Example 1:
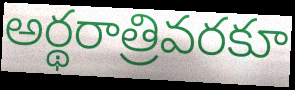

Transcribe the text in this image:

అర్థరాత్రివరకూ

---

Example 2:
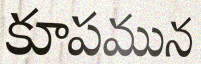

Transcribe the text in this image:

కూపమున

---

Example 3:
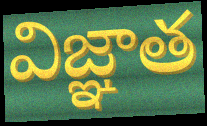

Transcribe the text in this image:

విజ్ఞాత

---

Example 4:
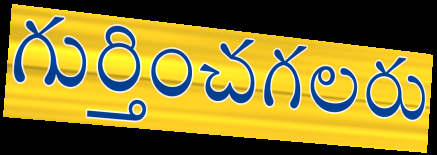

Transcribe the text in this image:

గుర్తించగలరు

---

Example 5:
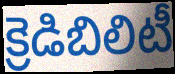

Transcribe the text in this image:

క్రెడిబిలిటీ